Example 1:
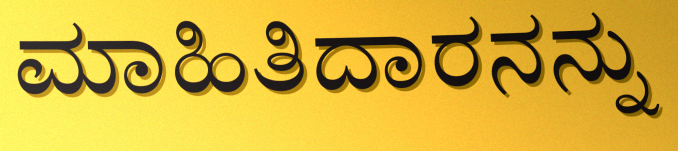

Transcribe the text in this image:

ಮಾಹಿತಿದಾರನನ್ನು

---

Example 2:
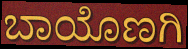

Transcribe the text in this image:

ಬಾಯೊಣಗಿ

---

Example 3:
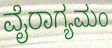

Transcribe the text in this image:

ವೈರಾಗ್ಯಮಂ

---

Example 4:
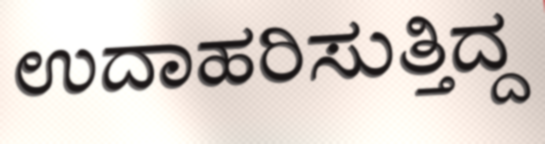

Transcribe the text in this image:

ಉದಾಹರಿಸುತ್ತಿದ್ದ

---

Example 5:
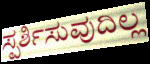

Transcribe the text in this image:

ಸ್ಪರ್ಶಿಸುವುದಿಲ್ಲ